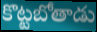
కొట్టబోతాడు